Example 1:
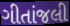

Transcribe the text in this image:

ગીતાંજલી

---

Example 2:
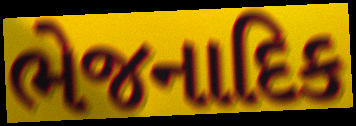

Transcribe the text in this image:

ભેજનાદિક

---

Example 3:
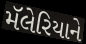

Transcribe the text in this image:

મૅલેરિયાને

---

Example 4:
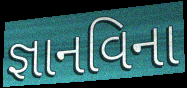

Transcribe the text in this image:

જ્ઞાનવિના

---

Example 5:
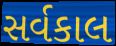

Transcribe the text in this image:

સર્વકાલ